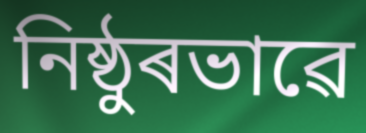
নিষ্ঠুৰভাৱে